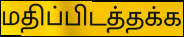
மதிப்பிடத்தக்க